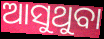
ଆସୁଥୁବା